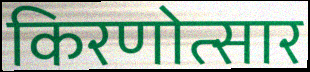
किरणोत्सार